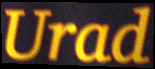
Urad